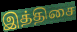
இத்திசை